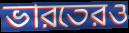
ভারতেরও